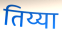
तिय्या